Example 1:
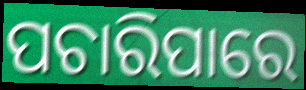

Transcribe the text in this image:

ପଚାରିପାରେ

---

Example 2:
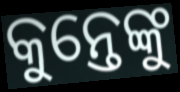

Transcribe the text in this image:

କୁନ୍ତେଙ୍କୁ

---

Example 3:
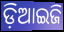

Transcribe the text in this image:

ଡ଼ିଆଇଜି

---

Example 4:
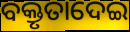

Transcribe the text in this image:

ବକ୍ତୃତାଦେଇ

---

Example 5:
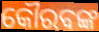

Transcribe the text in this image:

କୌରବଙ୍କ